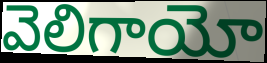
వెలిగాయో